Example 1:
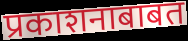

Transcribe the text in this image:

प्रकाशनाबाबत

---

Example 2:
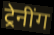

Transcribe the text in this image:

ट्रेनींग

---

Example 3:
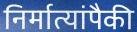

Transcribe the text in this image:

निर्मात्यांपैकी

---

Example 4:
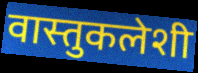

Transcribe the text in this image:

वास्तुकलेशी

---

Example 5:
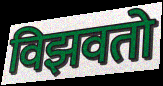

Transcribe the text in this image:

विझवतो